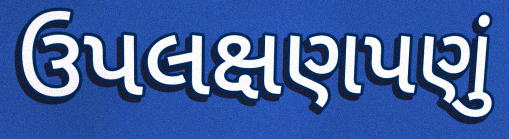
ઉપલક્ષણપણું